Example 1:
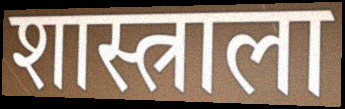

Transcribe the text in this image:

शास्त्राला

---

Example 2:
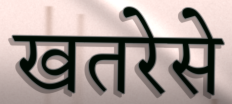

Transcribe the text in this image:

खतरेसे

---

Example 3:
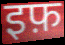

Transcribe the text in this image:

इफ़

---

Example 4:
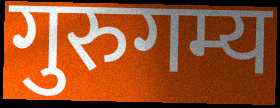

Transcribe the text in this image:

गुरुगम्य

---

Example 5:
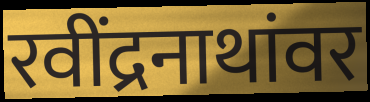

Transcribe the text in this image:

रवींद्रनाथांवर